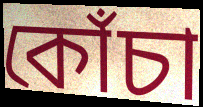
কোঁচা